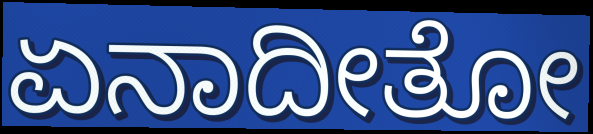
ಏನಾದೀತೋ